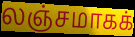
லஞ்சமாகக்